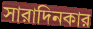
সারাদিনকার